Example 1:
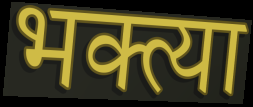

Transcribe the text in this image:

भक्त्या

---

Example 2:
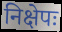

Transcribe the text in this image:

निक्षेपः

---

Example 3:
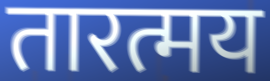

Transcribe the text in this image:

तारत्मय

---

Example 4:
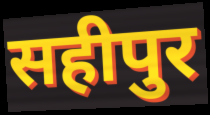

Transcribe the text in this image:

सहीपुर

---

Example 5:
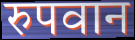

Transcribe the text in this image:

रुपवान